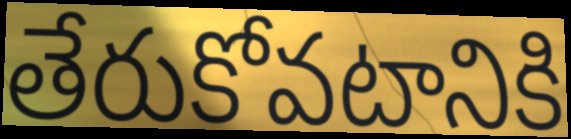
తేరుకోవటానికి